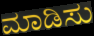
ಮಾಡಿಸು